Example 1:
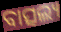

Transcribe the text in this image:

ବାତ୍ସଲ୍ଯ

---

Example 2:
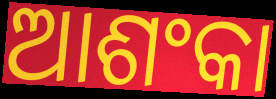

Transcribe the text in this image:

ଆଶଂକା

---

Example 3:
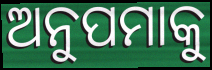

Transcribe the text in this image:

ଅନୁପମାକୁ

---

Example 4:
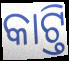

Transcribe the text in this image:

କାଟ୍ତି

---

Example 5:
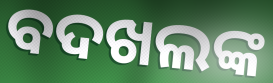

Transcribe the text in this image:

ବଦଖଲଙ୍କ